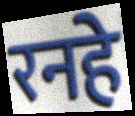
रनहे